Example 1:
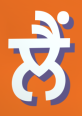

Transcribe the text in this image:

ਲੈਂ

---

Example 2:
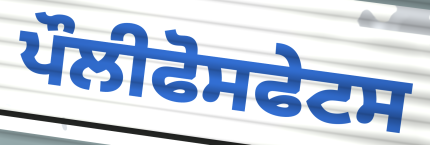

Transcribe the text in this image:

ਪੌਲੀਫੋਸਫੇਟਸ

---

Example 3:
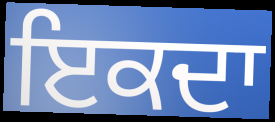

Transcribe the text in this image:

ਇਕਦਾ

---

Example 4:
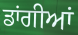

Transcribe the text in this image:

ਡਾਂਗੀਆਂ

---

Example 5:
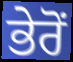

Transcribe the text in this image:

ਭੇਰੋਂ